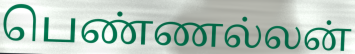
பெண்ணல்லன்